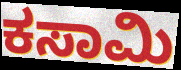
ಕಸಾಮಿ